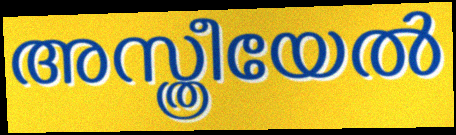
അസ്ത്രീയേൽ